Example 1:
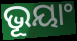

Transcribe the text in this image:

ଭୂୟାଂ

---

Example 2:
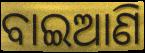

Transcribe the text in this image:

ବାଇଆଣି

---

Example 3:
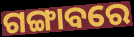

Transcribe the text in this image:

ଗଙ୍ଗାବରେ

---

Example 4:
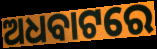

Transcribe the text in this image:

ଅଧବାଟରେ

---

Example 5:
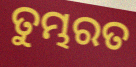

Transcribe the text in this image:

ତୁମ୍ଭରତ